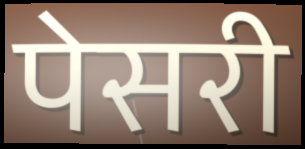
पेसरी